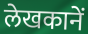
लेखकानें